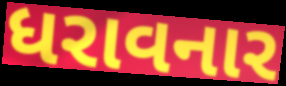
ધરાવનાર